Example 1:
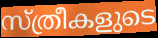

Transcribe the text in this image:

സ്ത്രീകളുടെ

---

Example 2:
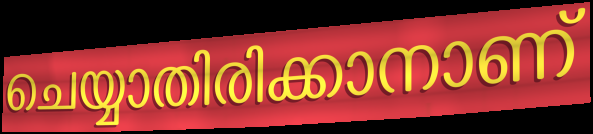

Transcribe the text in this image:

ചെയ്യാതിരിക്കാനാണ്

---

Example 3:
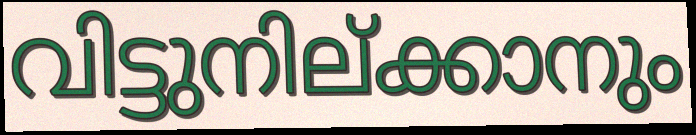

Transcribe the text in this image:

വിട്ടുനില്ക്കാനും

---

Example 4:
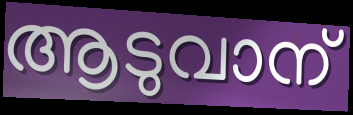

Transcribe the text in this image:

ആടുവാന്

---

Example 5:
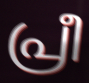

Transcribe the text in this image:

പ്രീ